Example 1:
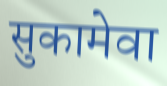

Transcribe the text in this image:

सुकामेवा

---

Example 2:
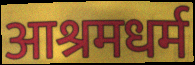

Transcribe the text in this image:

आश्रमधर्म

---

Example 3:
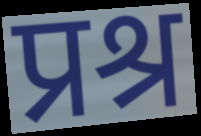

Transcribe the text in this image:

प्रश्र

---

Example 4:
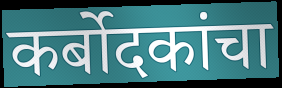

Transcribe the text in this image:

कर्बोदकांचा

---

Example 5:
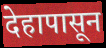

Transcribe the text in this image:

देहापासून